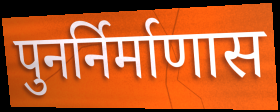
पुनर्निर्माणास